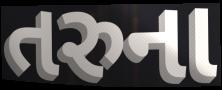
તરુના